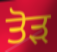
ਤੋਡ਼